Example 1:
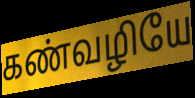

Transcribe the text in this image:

கண்வழியே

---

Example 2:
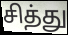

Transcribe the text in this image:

சித்து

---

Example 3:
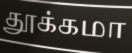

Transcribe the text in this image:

தூக்கமா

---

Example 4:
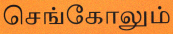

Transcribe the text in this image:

செங்கோலும்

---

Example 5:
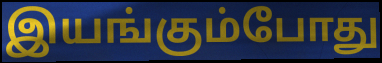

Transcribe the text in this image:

இயங்கும்போது